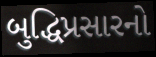
બુદ્ધિપ્રસારનો